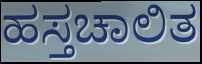
ಹಸ್ತಚಾಲಿತ